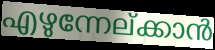
എഴുന്നേല്ക്കാൻ